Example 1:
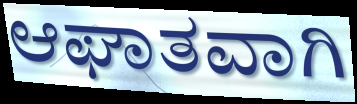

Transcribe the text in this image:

ಆಘಾತವಾಗಿ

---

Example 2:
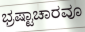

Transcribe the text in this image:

ಭ್ರಷ್ಟಾಚಾರವೂ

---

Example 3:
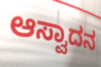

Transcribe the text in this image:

ಆಸ್ವಾದನ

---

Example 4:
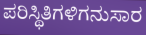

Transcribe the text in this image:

ಪರಿಸ್ಥಿತಿಗಳಿಗನುಸಾರ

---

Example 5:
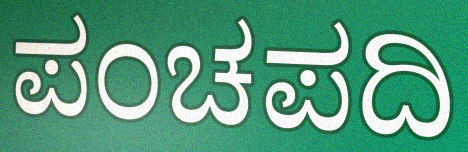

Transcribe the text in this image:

ಪಂಚಪದಿ